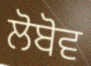
ਲੋਬੋਵ